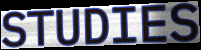
STUDIES